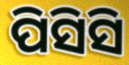
ପିସିସି